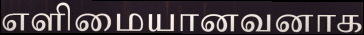
எளிமையானவனாக